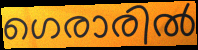
ഗെരാരിൽ